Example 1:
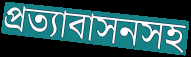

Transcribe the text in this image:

প্রত্যাবাসনসহ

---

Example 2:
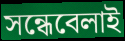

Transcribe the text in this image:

সন্ধেবেলাই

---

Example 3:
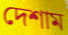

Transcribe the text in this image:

দেশাম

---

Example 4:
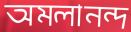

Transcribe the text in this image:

অমলানন্দ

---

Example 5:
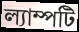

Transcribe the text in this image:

ল্যাম্পটি